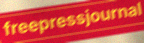
freepressjournal